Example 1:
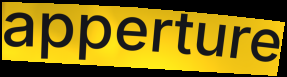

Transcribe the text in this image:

apperture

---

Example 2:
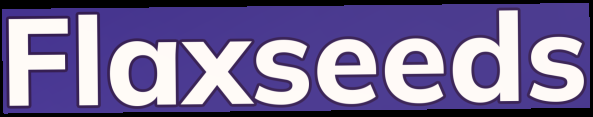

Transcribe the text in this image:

Flaxseeds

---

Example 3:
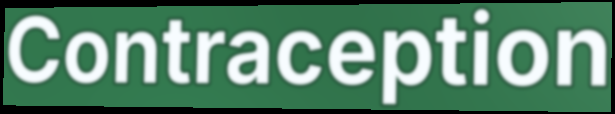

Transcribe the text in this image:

Contraception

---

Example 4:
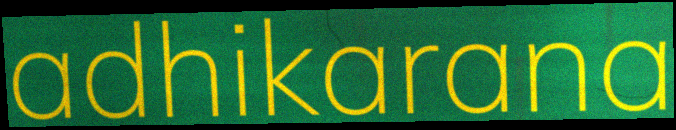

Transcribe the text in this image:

adhikarana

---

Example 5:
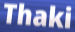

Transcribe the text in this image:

Thaki